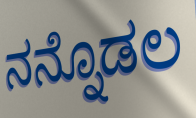
ನನ್ನೊಡಲ